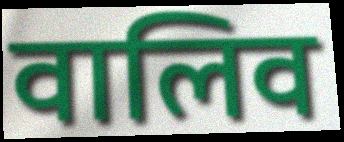
वालिव